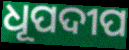
ଧୂପଦୀପ